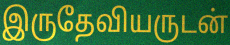
இருதேவியருடன்